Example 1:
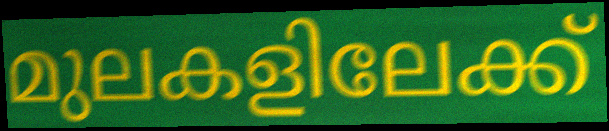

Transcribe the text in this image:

മുലകളിലേക്ക്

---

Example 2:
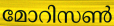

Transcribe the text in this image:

മോറിസൺ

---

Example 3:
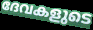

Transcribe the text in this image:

ദേവകളുടെ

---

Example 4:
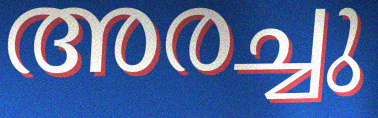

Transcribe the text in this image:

അരച്ചു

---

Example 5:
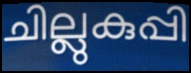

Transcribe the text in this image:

ചില്ലുകുപ്പി